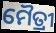
ମୈତ୍ରୀ